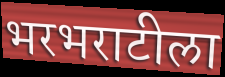
भरभराटीला